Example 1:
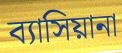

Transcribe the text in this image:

ব্যাসিয়ানা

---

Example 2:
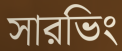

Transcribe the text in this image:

সারভিং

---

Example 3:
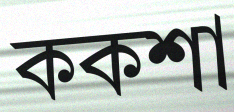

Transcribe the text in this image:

ককশা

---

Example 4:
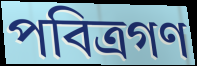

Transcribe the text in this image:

পবিত্রগণ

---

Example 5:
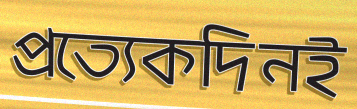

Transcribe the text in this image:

প্রত্যেকদিনই